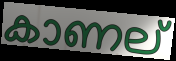
കാണല്